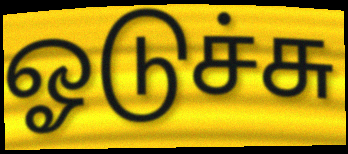
ஓடுச்சு